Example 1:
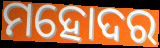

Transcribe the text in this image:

ମହୋଦର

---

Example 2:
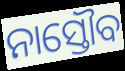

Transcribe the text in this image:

ନାସ୍ତୌବ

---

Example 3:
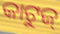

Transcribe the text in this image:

କାଟୁଜ୍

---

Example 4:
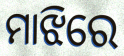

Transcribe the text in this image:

ମାଝିରେ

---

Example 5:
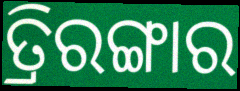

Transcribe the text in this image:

ତ୍ରିରଙ୍ଗାର